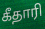
கீதாரி